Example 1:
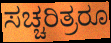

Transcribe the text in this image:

ಸಚ್ಚರಿತ್ರರೂ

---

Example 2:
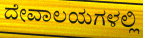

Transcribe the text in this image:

ದೇವಾಲಯಗಳಲ್ಲಿ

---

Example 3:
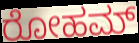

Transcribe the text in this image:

ರೋಹಮ್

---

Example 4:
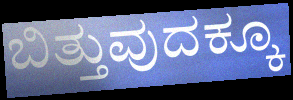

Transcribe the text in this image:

ಬಿತ್ತುವುದಕ್ಕೂ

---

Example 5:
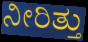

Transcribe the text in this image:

ನೀರಿತ್ತು